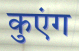
कुएंग